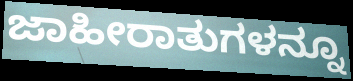
ಜಾಹೀರಾತುಗಳನ್ನೂ